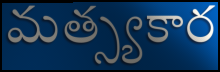
మత్స్యకార